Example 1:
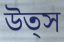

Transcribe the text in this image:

উত্স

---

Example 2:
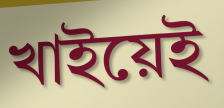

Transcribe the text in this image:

খাইয়েই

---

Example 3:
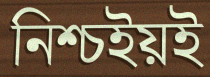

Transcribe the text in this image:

নিশ্চইয়ই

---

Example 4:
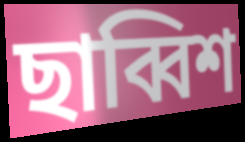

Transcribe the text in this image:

ছাব্বিশ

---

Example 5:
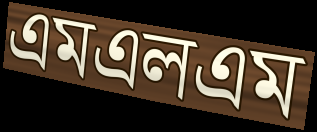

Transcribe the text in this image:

এমএলএম